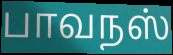
பாவநஸ்